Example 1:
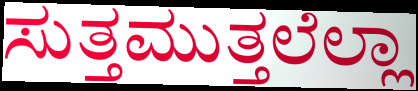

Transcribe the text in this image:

ಸುತ್ತಮುತ್ತಲೆಲ್ಲಾ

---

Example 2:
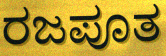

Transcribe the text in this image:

ರಜಪೂತ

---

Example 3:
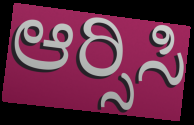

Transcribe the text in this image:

ಆರ್‍ಸಿಸಿ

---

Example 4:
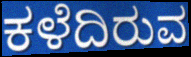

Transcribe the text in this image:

ಕಳೆದಿರುವ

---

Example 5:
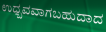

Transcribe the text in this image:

ಉಧ್ಬವವಾಗಬಹುದಾದ